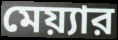
মেয়্যার